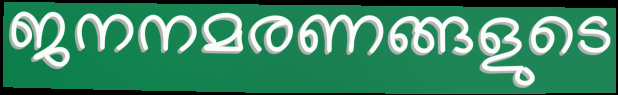
ജനനമരണങ്ങളുടെ